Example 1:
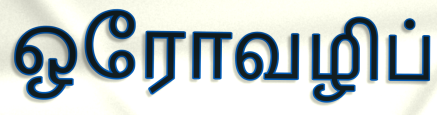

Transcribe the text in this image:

ஒரோவழிப்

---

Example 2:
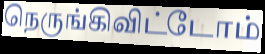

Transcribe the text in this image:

நெருங்கிவிட்டோம்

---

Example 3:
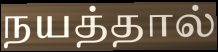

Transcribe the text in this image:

நயத்தால்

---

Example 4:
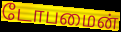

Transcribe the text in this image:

டோபமைன்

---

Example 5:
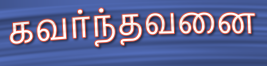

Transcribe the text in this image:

கவர்ந்தவனை